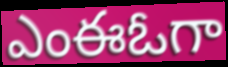
ఎంఈఓగా